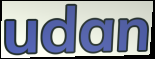
udan